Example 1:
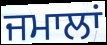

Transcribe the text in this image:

ਜਮਾਲਾਂ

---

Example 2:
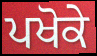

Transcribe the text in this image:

ਪਖੋਕੇ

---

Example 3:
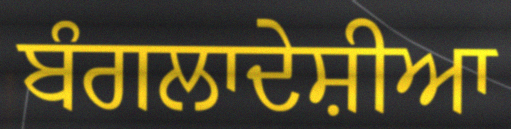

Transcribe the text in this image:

ਬੰਗਲਾਦੇਸ਼ੀਆ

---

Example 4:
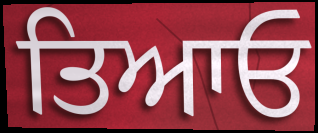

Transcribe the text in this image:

ਤਿਆਓ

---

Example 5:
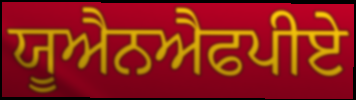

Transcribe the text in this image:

ਯੂਐਨਐਫਪੀਏ